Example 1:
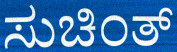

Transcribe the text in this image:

ಸುಚಿಂತ್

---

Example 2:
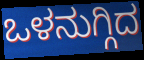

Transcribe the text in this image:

ಒಳನುಗ್ಗಿದ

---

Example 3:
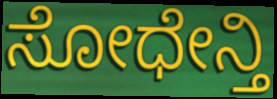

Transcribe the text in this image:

ಸೋಧೇನ್ತಿ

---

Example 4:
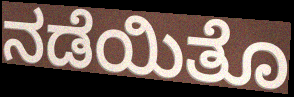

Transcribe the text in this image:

ನಡೆಯಿತೊ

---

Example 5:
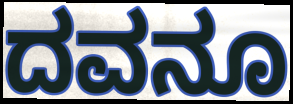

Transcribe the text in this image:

ದವನೂ